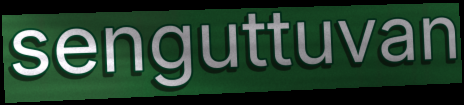
senguttuvan